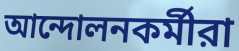
আন্দোলনকর্মীরা